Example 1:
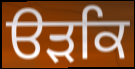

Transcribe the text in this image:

ੳੜਕਿ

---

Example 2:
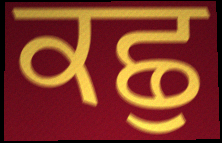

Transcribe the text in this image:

ਕਛੁ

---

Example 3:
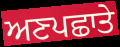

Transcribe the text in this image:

ਅਣਪਛਾਤੇ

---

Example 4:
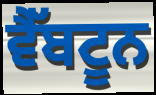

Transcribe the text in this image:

ਵੈੱਬਟੂਨ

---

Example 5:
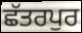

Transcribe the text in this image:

ਛੱਤਰਪੁਰ